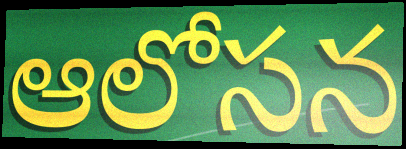
ఆలోసన